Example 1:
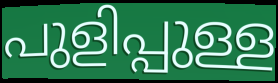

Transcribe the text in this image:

പുളിപ്പുള്ള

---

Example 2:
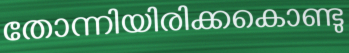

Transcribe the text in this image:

തോന്നിയിരിക്കകൊണ്ടു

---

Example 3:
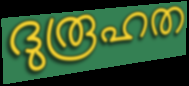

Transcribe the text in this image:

ദുരൂഹത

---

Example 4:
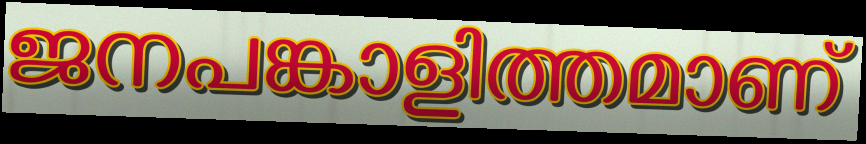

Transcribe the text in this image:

ജനപങ്കാളിത്തമാണ്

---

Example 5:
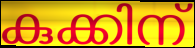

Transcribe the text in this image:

കുക്കിന്